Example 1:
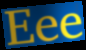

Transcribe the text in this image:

Eee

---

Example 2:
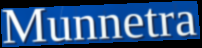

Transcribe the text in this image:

Munnetra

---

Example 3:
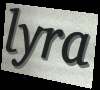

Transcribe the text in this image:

lyra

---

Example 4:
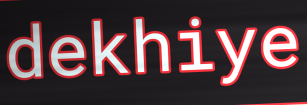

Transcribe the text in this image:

dekhiye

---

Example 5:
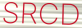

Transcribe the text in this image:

SRCD